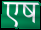
एष